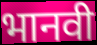
भानवी